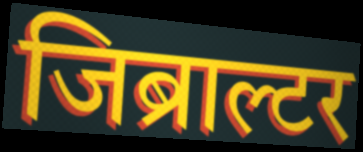
जिब्राल्टर